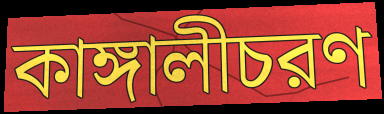
কাঙ্গালীচরণ